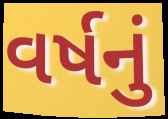
વર્ષનું